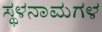
ಸ್ಥಳನಾಮಗಳ